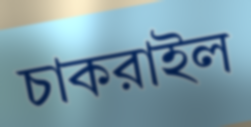
চাকরাইল